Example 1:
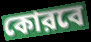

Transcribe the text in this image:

কোরবে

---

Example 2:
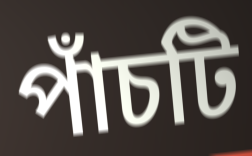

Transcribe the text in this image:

পাঁচটি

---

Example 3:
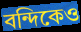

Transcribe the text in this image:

বন্দিকেও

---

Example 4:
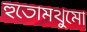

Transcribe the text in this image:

হুতোমথুমো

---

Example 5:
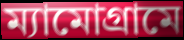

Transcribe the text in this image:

ম্যামোগ্রামে